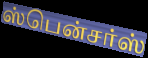
ஸ்பென்சர்ஸ்